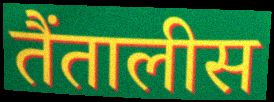
तैंतालीस